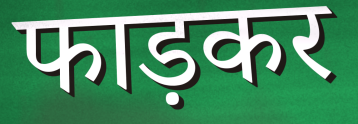
फाड़कर